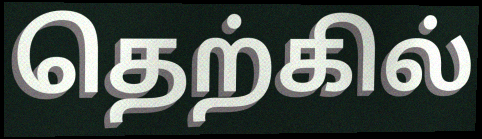
தெற்கில்